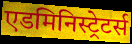
एडमिनिस्ट्रेटर्स